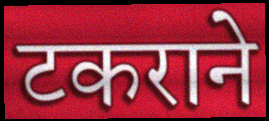
टकराने